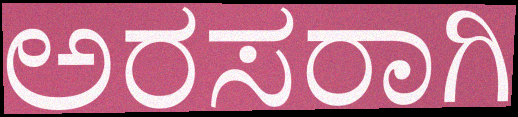
ಅರಸರಾಗಿ